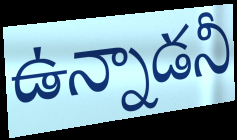
ఉన్నాడనీ